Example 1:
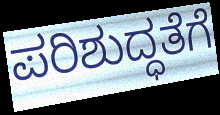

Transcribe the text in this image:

ಪರಿಶುದ್ಧತೆಗೆ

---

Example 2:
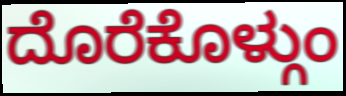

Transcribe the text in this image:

ದೊರೆಕೊಳ್ಗುಂ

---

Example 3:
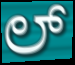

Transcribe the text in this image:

ಲ್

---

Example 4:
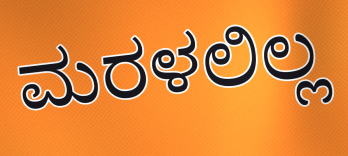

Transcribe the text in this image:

ಮರಳಲಿಲ್ಲ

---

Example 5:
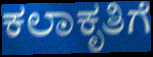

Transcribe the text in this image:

ಕಲಾಕೃತಿಗೆ